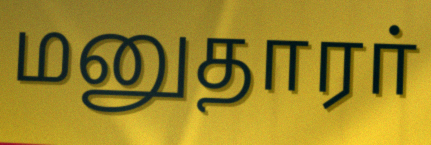
மனுதாரர்